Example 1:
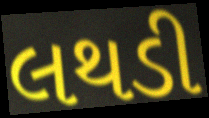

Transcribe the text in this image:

લથડી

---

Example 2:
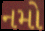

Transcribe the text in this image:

નમો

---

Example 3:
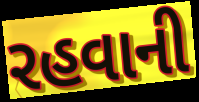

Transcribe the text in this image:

રહવાની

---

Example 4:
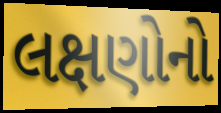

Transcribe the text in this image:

લક્ષણોનો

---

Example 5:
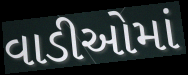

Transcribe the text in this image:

વાડીઓમાં